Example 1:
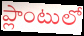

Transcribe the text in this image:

ప్లాంటులో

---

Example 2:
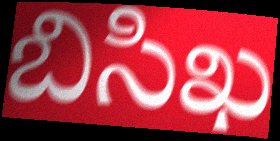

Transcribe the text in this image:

బిసిఖ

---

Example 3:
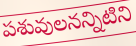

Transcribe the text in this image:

పశువులనన్నిటిని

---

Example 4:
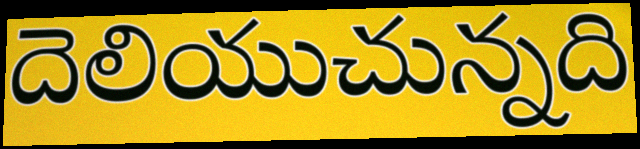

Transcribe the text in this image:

దెలియుచున్నది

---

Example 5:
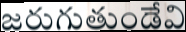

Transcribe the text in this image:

జరుగుతుండేవి